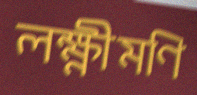
লক্ষ্ণীমণি